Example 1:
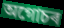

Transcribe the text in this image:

অগোচৰ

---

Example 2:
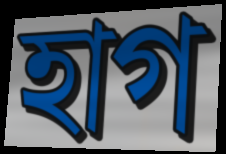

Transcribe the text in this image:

হাগ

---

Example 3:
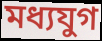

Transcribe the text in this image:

মধ্যযুগ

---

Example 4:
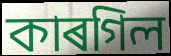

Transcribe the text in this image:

কাৰগিল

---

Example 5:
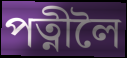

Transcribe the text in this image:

পত্নীলৈ